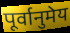
पूर्वानुमेय